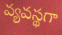
వ్యవస్థగా